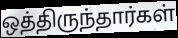
ஒத்திருந்தார்கள்